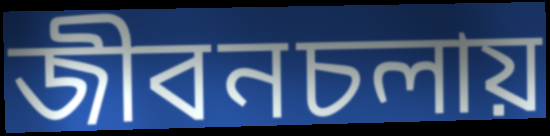
জীবনচলায়